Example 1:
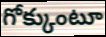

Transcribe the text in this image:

గోక్కుంటూ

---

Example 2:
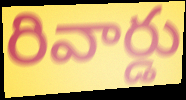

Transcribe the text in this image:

రివార్డు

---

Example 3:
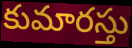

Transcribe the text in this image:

కుమారస్తు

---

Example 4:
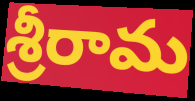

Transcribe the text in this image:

శ్రీరామ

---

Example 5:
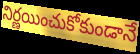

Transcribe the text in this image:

నిర్ణయించుకోకుండానే